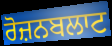
ਰੋਜ਼ਨਬਲਾਟ